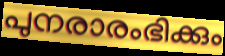
പുനരാരംഭിക്കും